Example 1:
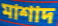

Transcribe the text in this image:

মাশাদ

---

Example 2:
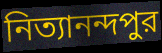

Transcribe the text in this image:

নিত্যানন্দপুর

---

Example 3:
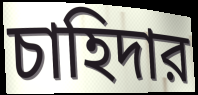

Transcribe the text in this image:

চাহিদার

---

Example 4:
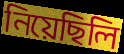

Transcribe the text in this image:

নিয়েছিলি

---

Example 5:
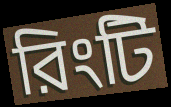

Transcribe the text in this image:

রিংটি